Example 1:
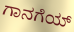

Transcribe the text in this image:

ಗಾನಗೆಯ್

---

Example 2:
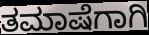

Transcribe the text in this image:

ತಮಾಷೆಗಾಗಿ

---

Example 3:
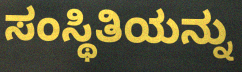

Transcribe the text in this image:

ಸಂಸ್ಥಿತಿಯನ್ನು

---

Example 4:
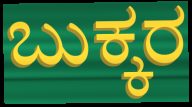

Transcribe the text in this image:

ಬುಕ್ಕರ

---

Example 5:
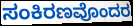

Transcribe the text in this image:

ಸಂಕಿರಣವೊಂದರ